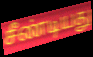
சீண்டியது